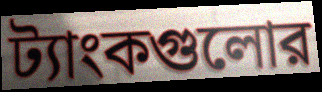
ট্যাংকগুলোর